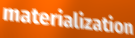
materialization